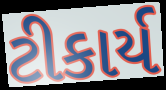
ટીકાર્ય